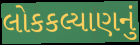
લોકકલ્યાણનું